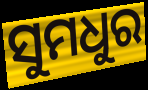
ସୁମଧୁର